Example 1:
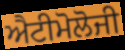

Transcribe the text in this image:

ਐਟੀਮੋਲੋਜੀ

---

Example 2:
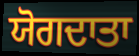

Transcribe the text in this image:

ਯੋਗਦਾਤਾ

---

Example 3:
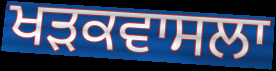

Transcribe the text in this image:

ਖੜਕਵਾਸਲਾ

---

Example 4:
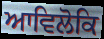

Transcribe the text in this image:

ਆਵਿਲੋਕਿ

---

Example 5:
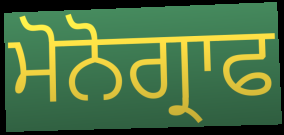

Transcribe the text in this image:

ਮੋਨੋਗ੍ਰਾਫ